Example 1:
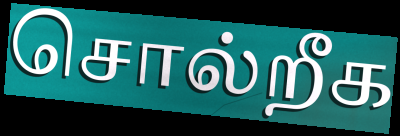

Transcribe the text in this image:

சொல்றீக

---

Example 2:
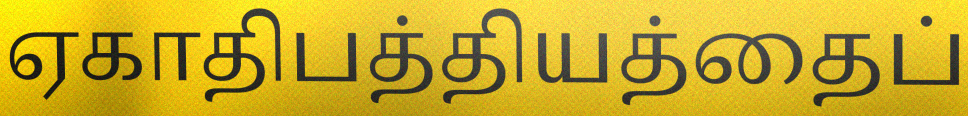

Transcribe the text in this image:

ஏகாதிபத்தியத்தைப்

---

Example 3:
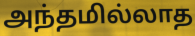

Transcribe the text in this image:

அந்தமில்லாத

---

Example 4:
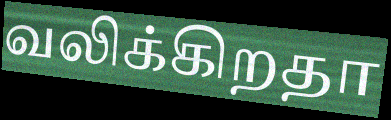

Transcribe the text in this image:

வலிக்கிறதா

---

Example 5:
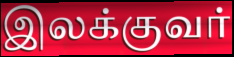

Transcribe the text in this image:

இலக்குவர்